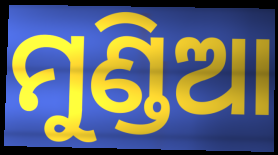
ମୁଣ୍ଡିଆ